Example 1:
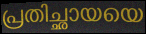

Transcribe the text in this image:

പ്രതിച്ഛായയെ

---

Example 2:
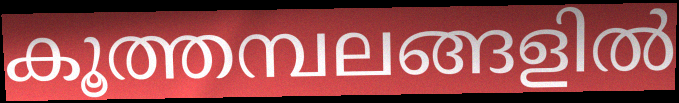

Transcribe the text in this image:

കൂത്തമ്പലങ്ങളിൽ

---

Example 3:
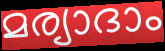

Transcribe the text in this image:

മര്യാദാം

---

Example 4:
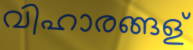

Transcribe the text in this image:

വിഹാരങ്ങള്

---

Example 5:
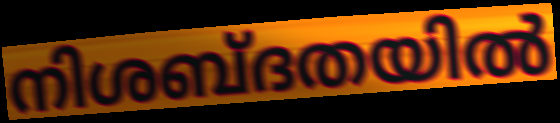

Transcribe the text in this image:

നിശബ്ദതയിൽ